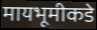
मायभूमीकडे